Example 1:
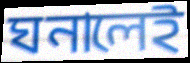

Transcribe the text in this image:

ঘনালেই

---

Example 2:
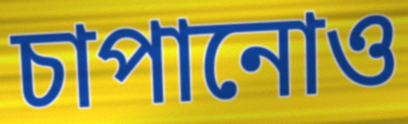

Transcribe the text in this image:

চাপানোও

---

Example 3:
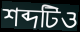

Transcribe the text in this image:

শব্দটিও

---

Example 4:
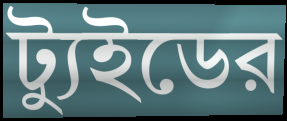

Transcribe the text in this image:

ট্যুইডের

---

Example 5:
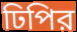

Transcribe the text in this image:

ঢিপির